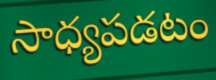
సాధ్యపడటం